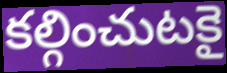
కల్గించుటకై